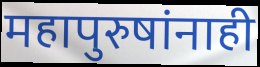
महापुरुषांनाही